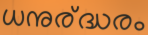
ധനുര്ദ്ധരം